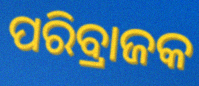
ପରିବ୍ରାଜକ